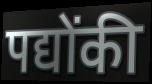
पद्योंकी